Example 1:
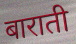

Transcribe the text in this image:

बाराती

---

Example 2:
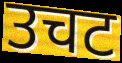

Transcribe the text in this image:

उचट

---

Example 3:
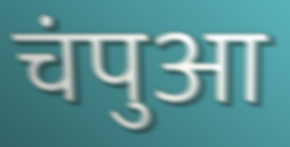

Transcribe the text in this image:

चंपुआ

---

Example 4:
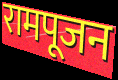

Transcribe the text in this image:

रामपूजन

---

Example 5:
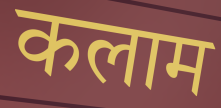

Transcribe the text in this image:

कलाम